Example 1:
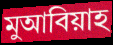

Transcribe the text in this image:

মুআবিয়াহ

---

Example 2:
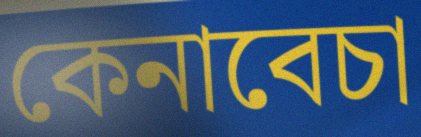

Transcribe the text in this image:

কেনাবেচা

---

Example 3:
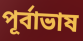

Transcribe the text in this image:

পূর্বাভাষ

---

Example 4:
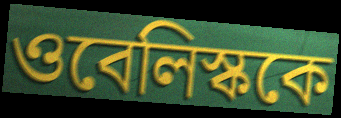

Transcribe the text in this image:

ওবেলিস্ককে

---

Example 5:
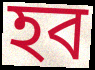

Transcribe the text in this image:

হব